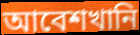
আবেশখানি